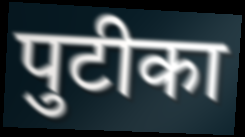
पुटीका